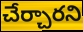
చేర్చారని